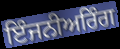
ਇੰਜਨੀਅਰਿੰਗ